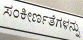
ಸಂಕೀರ್ಣತೆಗಳನ್ನು